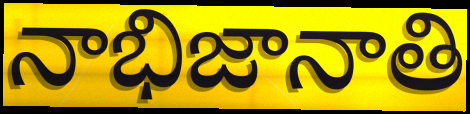
నాభిజానాతి